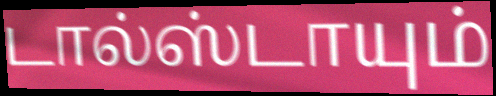
டால்ஸ்டாயும்